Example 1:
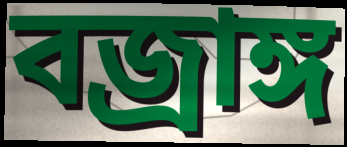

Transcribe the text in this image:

বজ্রাঙ্গ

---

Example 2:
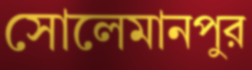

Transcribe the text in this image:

সোলেমানপুর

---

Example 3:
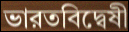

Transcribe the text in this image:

ভারতবিদ্বেষী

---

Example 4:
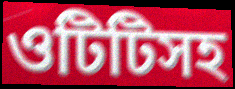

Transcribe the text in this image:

ওটিটিসহ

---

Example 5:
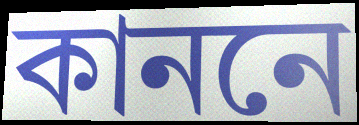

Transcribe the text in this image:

কাননে